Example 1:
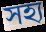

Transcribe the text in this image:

সহ্য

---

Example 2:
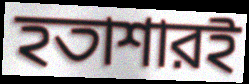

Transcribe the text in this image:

হতাশারই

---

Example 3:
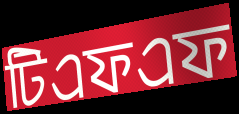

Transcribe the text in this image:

টিএফএফ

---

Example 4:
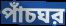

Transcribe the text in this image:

পাঁচঘর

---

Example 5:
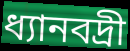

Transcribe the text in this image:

ধ্যানবদ্রী